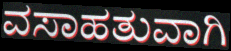
ವಸಾಹತುವಾಗಿ